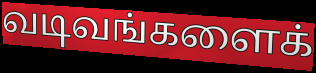
வடிவங்களைக்